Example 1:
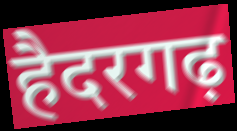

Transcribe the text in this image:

हैदरगढ़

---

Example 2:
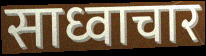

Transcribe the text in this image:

साध्वाचार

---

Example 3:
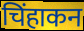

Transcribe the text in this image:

चिंहाकन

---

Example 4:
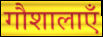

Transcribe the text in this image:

गौशालाएँ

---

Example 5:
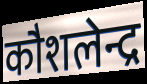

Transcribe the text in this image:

कौशलेन्द्र